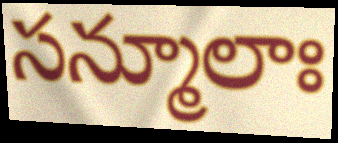
సన్మూలాః